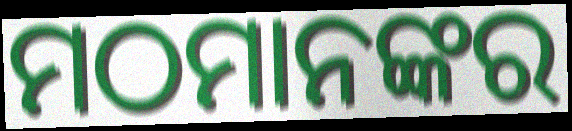
ମଠମାନଙ୍କର